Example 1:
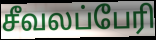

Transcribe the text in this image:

சீவலப்பேரி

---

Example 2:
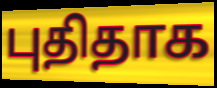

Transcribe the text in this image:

புதிதாக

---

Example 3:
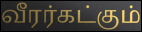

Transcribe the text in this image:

வீரர்கட்கும்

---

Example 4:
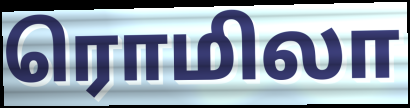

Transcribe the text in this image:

ரொமிலா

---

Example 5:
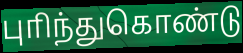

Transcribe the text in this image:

புரிந்துகொண்டு